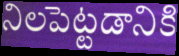
నిలపెట్టడానికి